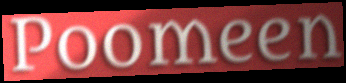
Poomeen